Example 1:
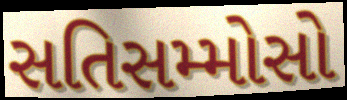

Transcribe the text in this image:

સતિસમ્મોસો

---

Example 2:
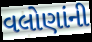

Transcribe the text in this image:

વલોણાંની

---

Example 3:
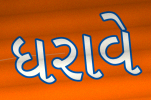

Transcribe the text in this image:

ધરાવે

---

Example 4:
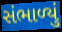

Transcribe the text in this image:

સંભાળ્યું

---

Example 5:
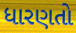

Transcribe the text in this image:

ધારણતો